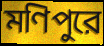
মণিপুরে